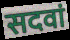
सदवां